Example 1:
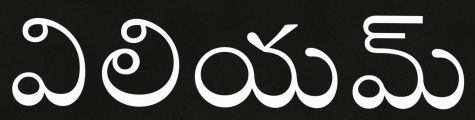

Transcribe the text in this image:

విలియమ్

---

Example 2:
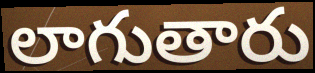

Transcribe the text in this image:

లాగుతారు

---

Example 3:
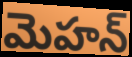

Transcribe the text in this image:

మెహన్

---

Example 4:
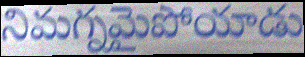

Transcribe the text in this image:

నిమగ్నమైపోయాడు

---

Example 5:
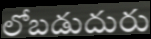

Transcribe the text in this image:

లోబడుదురు